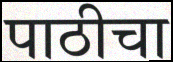
पाठीचा